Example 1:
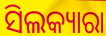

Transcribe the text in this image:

ସିଲକ୍ୟାରା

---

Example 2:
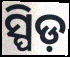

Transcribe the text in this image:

ସ୍ପିଡ଼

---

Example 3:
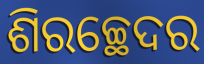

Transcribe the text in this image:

ଶିରଚ୍ଛେଦର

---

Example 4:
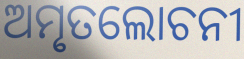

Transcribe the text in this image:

ଅମୃତଲୋଚନୀ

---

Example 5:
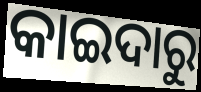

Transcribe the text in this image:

କାଇଦାରୁ